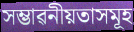
সম্ভাৱনীয়তাসমূহ